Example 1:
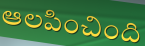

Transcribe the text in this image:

ఆలపించింది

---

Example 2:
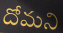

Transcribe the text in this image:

దోమని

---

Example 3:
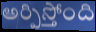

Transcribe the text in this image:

అర్పిస్తోంది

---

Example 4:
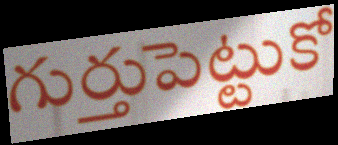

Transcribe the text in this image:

గుర్తుపెట్టుకో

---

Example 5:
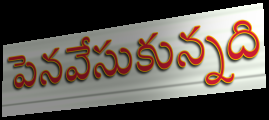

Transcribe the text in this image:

పెనవేసుకున్నది